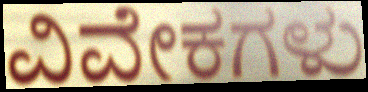
ವಿವೇಕಗಳು